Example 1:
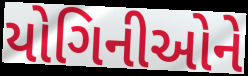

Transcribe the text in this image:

યોગિનીઓને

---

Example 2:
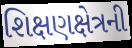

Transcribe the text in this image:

શિક્ષણક્ષેત્રની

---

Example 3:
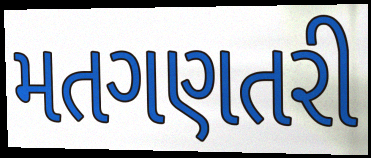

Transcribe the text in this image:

મતગણતરી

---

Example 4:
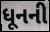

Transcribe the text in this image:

ધૂનની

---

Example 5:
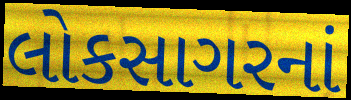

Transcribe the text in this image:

લોકસાગરનાં